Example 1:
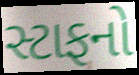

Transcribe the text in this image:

સ્ટાફનો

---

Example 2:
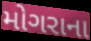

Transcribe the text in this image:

મોગરાના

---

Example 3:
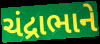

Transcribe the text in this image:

ચંદ્રાભાને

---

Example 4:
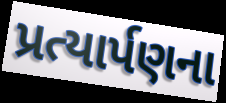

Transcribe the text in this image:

પ્રત્યાર્પણના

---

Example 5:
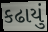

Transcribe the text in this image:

કઢાયું